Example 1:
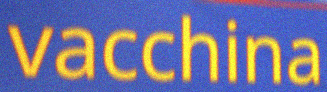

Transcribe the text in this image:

vacchina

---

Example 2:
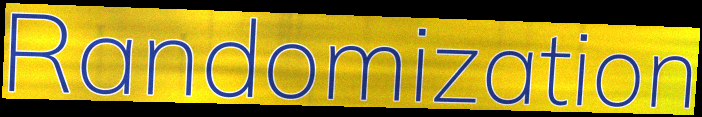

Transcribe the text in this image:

Randomization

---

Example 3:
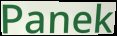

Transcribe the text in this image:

Panek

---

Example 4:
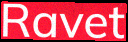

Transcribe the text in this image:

Ravet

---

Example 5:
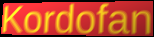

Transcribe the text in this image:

Kordofan